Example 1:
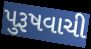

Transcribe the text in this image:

પુરૂષવાચી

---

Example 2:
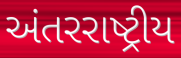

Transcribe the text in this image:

અંતરરાષ્ટ્રીય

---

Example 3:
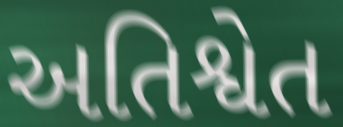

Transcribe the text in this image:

અતિશ્વેત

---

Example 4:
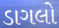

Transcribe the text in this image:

ડાગલો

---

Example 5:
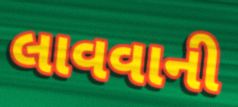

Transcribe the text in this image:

લાવવાની